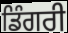
ਡਿੰਗਰੀ